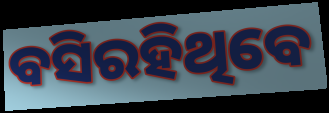
ବସିରହିଥିବେ